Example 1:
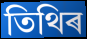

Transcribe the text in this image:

তিথিৰ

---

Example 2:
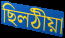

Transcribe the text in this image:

ছিলঠীয়া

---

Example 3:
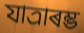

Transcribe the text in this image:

যাত্ৰাৰম্ভ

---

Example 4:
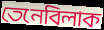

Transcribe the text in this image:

তেনেবিলাক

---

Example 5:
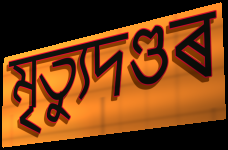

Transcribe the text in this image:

মৃত্যুদণ্ডৰ